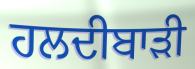
ਹਲਦੀਬਾੜੀ